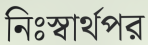
নিঃস্বার্থপর